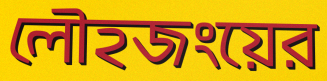
লৌহজংয়ের